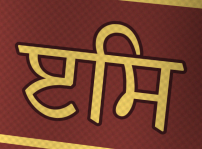
ੲਸਿ